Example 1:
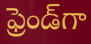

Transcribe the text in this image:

ఫ్రెండ్‌గా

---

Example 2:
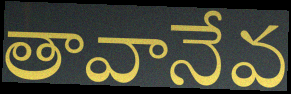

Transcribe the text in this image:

తావానేవ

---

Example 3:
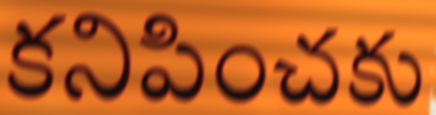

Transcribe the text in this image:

కనిపించకు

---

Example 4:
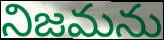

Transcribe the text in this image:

నిజమను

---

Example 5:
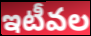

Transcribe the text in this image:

ఇటీవల